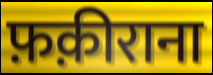
फ़क़ीराना